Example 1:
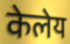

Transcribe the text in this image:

केलेय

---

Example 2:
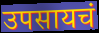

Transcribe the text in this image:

उपसायचं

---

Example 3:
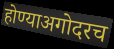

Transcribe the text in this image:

होण्याअगोदरच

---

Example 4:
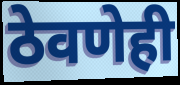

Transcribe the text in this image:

ठेवणेही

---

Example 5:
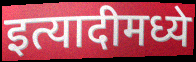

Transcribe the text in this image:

इत्यादीमध्ये